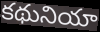
కథునియా